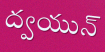
ద్వయున్